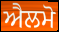
ਐਲਮੋ